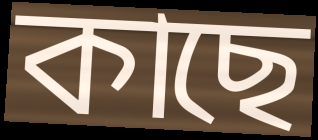
কাছে